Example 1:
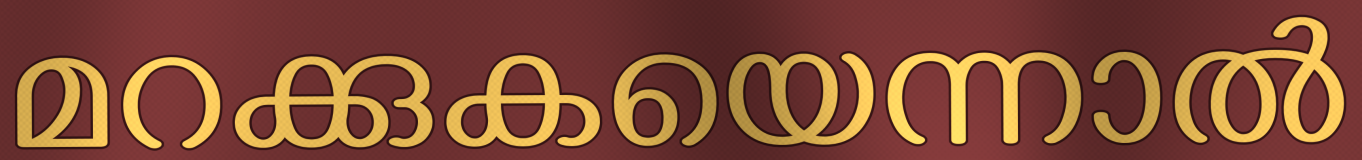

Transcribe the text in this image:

മറക്കുകയെന്നാൽ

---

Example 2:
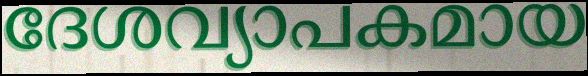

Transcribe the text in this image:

ദേശവ്യാപകമായ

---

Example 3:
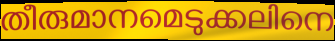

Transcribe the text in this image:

തീരുമാനമെടുക്കലിനെ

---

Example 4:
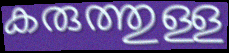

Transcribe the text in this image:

കരുത്തുള്ള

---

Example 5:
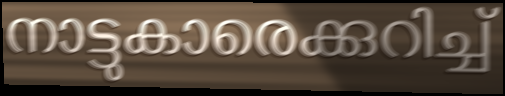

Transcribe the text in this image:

നാട്ടുകാരെക്കുറിച്ച്